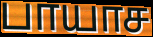
பாயாச